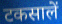
टकसालें